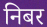
निबर